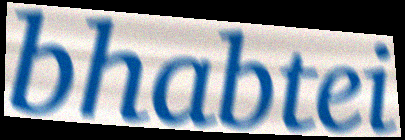
bhabtei